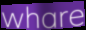
whare